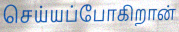
செய்யப்போகிறான்